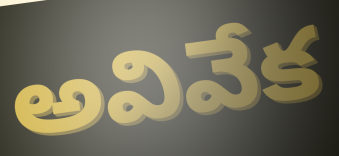
అవివేక